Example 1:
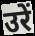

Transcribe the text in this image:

उरें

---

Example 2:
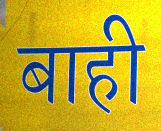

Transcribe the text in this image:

बाही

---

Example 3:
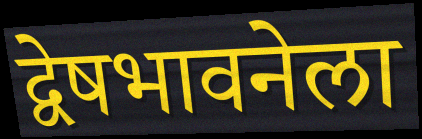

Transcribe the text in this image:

द्वेषभावनेला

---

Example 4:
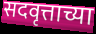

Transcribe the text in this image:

सदवृत्ताच्या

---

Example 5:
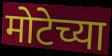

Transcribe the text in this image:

मोटेच्या